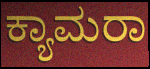
ಕ್ಯಾಮರಾ